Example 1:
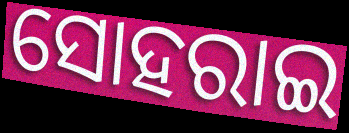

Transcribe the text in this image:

ସୋହରାଇ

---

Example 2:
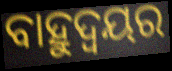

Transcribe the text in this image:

ବାହୁଦ୍ୱୟର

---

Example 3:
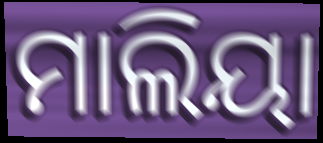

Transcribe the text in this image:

ମାଲିୟା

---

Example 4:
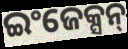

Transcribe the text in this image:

ଇଂଜେକ୍ସନ୍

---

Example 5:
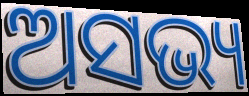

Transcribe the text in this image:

ଅସଭ୍ୟ